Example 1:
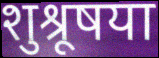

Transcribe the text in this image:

शुश्रूषया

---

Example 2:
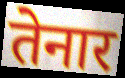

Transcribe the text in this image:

तेनार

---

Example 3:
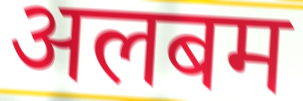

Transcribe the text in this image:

अलबम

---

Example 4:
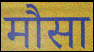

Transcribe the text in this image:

मौसा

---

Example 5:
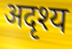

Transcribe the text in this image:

अदृश्य